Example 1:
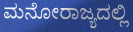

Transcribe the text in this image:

ಮನೋರಾಜ್ಯದಲ್ಲಿ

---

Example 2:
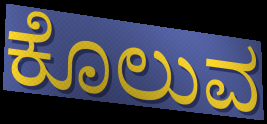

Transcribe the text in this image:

ಕೊಲುವ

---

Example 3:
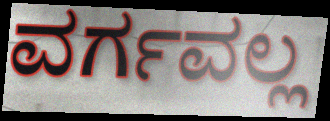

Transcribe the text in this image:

ವರ್ಗವಲ್ಲ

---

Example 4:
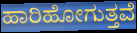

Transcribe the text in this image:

ಹಾರಿಹೋಗುತ್ತವೆ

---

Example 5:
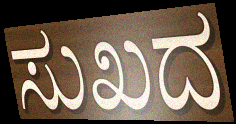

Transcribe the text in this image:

ಸುಖದ